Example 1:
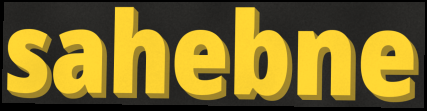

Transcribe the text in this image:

sahebne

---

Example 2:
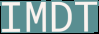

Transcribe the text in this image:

IMDT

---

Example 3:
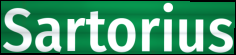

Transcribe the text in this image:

Sartorius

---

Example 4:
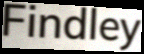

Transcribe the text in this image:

Findley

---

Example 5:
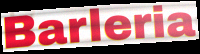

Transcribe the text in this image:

Barleria